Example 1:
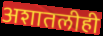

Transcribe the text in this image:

अशातलीही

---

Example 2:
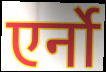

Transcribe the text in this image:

एर्नो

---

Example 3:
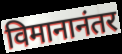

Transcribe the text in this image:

विमानानंतर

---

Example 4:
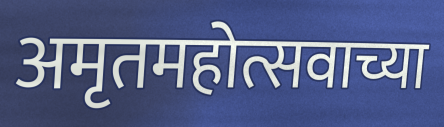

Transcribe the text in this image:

अमृतमहोत्सवाच्या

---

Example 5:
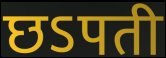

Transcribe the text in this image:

छऽपती